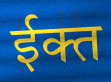
ईक्त